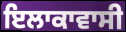
ਇਲਾਕਾਵਾਸੀ